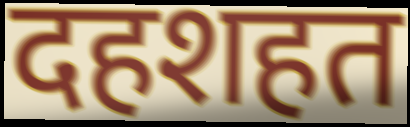
दहशहत